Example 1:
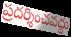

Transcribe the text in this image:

ప్రదర్శించవద్దు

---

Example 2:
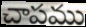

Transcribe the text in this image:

చాపము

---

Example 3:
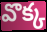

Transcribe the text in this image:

వొక్క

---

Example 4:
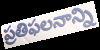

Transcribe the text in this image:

ప్రతిఫలనాన్ని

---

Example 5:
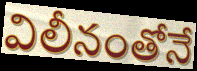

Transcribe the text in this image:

విలీనంతోనే